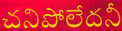
చనిపోలేదనీ